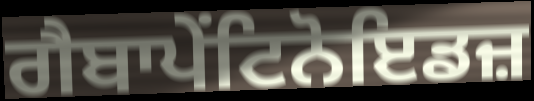
ਗੈਬਾਪੇਂਟਿਨੋਇਡਜ਼